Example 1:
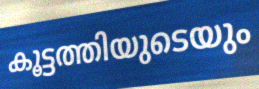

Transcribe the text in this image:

കൂട്ടത്തിയുടെയും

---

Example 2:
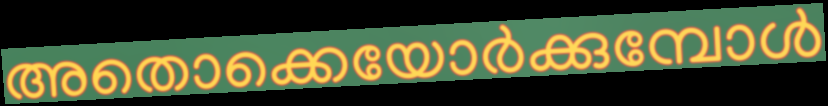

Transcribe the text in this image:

അതൊക്കെയോർക്കുമ്പോൾ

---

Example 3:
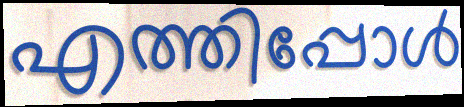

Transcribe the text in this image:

എത്തിപ്പോൾ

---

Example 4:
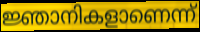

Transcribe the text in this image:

ജ്ഞാനികളാണെന്ന്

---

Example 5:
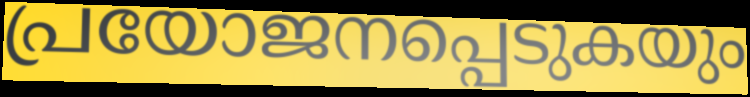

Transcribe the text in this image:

പ്രയോജനപ്പെടുകയും